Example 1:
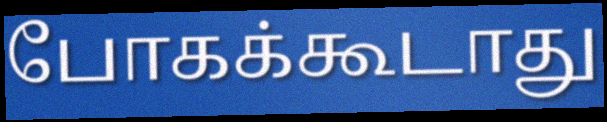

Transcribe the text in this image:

போகக்கூடாது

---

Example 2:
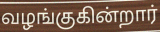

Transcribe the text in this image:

வழங்குகின்றார்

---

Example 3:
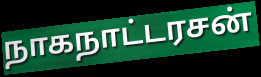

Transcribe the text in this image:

நாகநாட்டரசன்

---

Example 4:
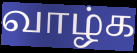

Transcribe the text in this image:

வாழ்க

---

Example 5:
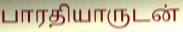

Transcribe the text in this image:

பாரதியாருடன்